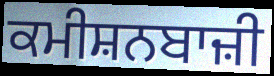
ਕਮੀਸ਼ਨਬਾਜ਼ੀ